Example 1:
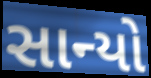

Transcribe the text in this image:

સાન્યો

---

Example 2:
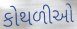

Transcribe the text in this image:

કોથળીઓ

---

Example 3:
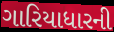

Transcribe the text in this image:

ગારિયાધારની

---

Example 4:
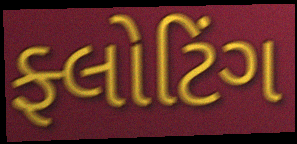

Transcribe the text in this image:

ફ્લોટિંગ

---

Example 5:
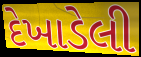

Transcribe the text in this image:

દેખાડેલી